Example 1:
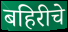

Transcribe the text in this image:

बहिरीचे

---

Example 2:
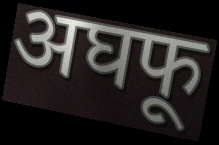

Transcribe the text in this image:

अघफू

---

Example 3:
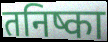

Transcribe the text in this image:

तनिष्का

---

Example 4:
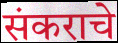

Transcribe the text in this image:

संकराचे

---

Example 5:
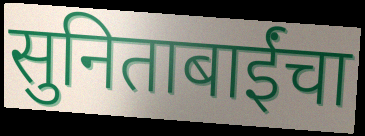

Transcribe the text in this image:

सुनिताबाईंचा